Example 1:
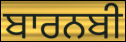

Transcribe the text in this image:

ਬਾਰਨਬੀ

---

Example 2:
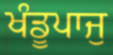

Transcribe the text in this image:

ਖੰਡੂਪਾਜੁ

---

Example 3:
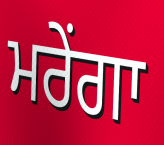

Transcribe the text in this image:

ਮਰੇਂਗਾ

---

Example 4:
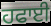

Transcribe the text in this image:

ਹਫਾਈ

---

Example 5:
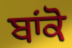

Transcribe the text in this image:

ਬਾਂਕੋ